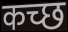
कच्‍छ